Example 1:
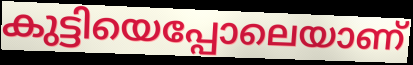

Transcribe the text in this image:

കുട്ടിയെപ്പോലെയാണ്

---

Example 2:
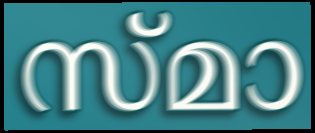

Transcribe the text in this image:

സ്മാ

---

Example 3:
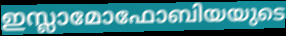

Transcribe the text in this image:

ഇസ്ലാമോഫോബിയയുടെ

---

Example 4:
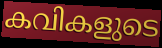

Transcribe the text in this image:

കവികളുടെ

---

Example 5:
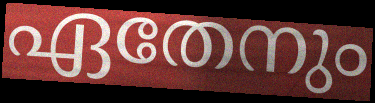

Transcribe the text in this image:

ഏതേനും